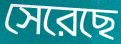
সেরেছে